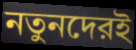
নতুনদেরই